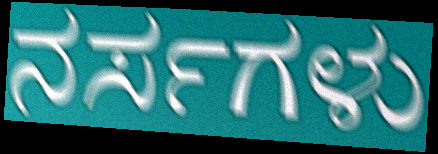
ನರ್ಸಗಳು